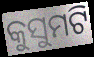
କୁସୁମଟି